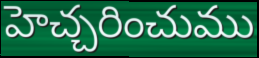
హెచ్చరించుము